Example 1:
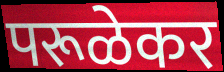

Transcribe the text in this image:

परूळेकर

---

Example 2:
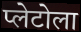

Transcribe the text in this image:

प्लेटोला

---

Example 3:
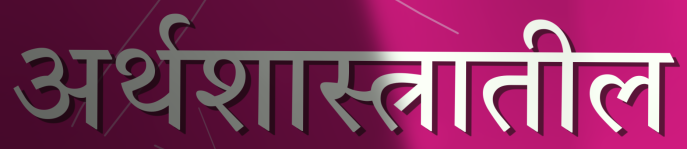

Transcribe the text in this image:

अर्थशास्त्रातील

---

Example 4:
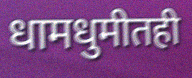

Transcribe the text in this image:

धामधुमीतही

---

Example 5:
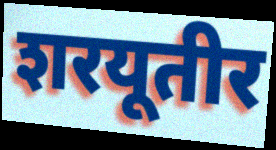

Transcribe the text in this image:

शरयूतीर